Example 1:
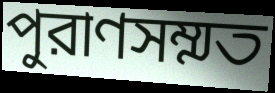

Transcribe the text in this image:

পুরাণসম্মত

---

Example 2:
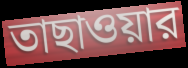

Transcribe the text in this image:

তাছাওয়ার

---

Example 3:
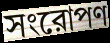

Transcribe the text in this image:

সংরোপণ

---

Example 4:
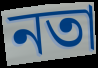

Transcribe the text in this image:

নতা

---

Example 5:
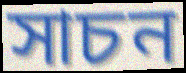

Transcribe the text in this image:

সাচন